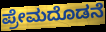
ಪ್ರೇಮದೊಡನೆ